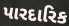
પારદારિક